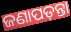
ଜଣାପଡ଼ନ୍ତା